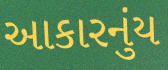
આકારનુંય